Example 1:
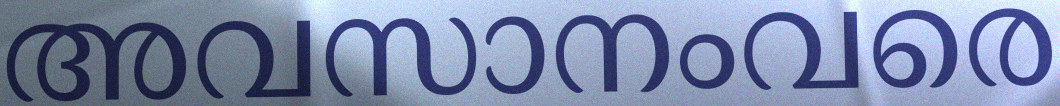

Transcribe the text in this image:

അവസാനംവരെ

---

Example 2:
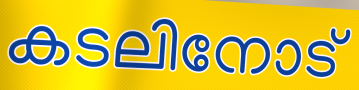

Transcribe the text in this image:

കടലിനോട്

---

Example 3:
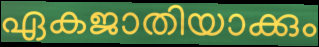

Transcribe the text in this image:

ഏകജാതിയാക്കും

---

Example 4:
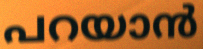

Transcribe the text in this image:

പറയാൻ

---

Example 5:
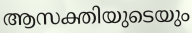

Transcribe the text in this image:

ആസക്തിയുടെയും